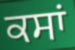
ਕਸਾਂ